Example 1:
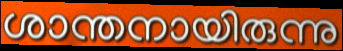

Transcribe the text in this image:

ശാന്തനായിരുന്നു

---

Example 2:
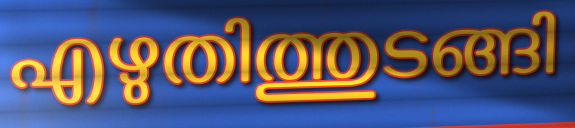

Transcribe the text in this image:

എഴുതിത്തുടങ്ങി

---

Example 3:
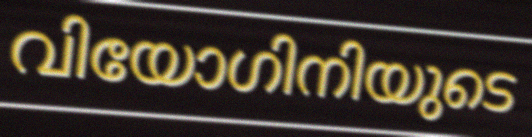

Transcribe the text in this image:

വിയോഗിനിയുടെ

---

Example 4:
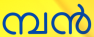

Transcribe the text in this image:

മ്പൻ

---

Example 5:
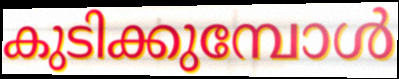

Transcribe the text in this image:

കുടിക്കുമ്പോൾ